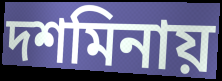
দশমিনায়